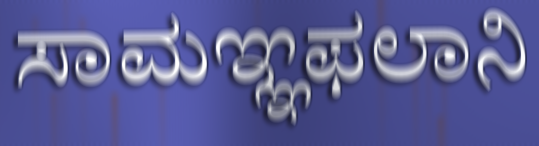
ಸಾಮಞ್ಞಫಲಾನಿ